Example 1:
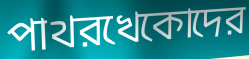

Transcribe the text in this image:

পাথরখেকোদের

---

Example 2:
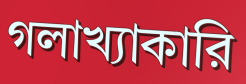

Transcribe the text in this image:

গলাখ্যাকারি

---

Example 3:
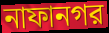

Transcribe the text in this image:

নাফানগর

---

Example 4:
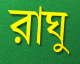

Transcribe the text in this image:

রাঘু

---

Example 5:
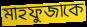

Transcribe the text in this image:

মাহফুজাকে